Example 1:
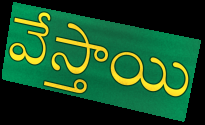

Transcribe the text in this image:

వేస్తాయి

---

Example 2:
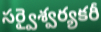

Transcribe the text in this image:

సర్వైశ్వర్యకరీ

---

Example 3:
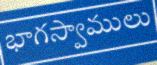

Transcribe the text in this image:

భాగస్వాములు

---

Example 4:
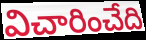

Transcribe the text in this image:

విచారించేది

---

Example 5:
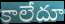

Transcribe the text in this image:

కాలేదూ